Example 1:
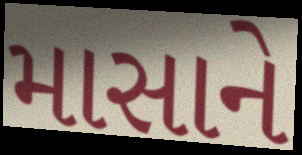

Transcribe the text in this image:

માસાને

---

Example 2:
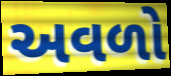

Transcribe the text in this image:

અવળો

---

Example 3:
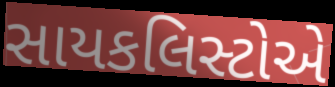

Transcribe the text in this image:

સાયકલિસ્ટોએ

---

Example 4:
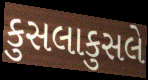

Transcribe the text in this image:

કુસલાકુસલે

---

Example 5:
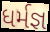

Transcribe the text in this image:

ધર્મજ્ઞ